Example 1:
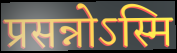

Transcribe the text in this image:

प्रसन्नोऽस्मि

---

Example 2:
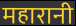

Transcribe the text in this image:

महारानी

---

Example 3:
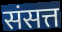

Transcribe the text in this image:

संसत्त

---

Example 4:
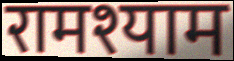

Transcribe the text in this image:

रामश्याम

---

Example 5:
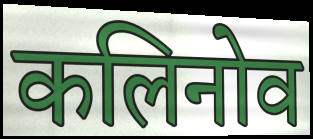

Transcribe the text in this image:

कलिनोव